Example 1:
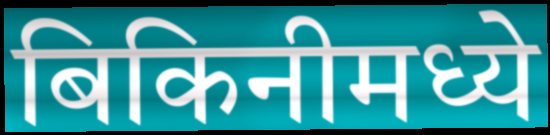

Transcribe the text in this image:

बिकिनीमध्ये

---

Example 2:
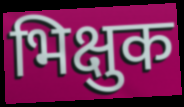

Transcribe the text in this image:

भिक्षुक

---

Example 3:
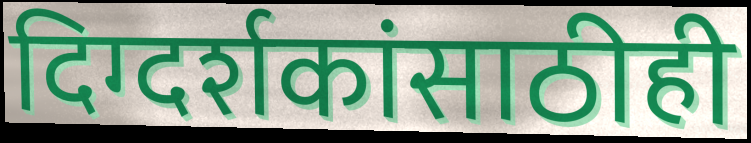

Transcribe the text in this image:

दिग्दर्शकांसाठीही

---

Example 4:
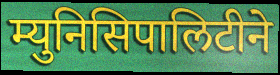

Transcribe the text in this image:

म्युनिसिपालिटीने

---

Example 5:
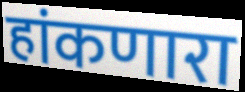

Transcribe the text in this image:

हांकणारा